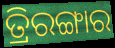
ତ୍ରିରଙ୍ଗାର